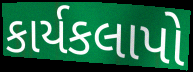
કાર્યકલાપો